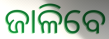
ଜାଳିବେ